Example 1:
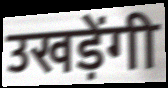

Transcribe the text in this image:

उखड़ेंगी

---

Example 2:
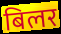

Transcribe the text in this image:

बिलर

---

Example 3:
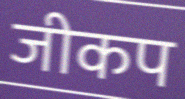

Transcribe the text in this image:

जीकप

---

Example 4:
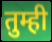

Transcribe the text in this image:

तुम्ही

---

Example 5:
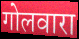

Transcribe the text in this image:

गोलवारा